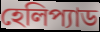
হেলিপ্যাড